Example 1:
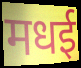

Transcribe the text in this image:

मधई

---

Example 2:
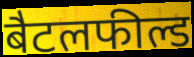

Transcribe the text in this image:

बैटलफील्ड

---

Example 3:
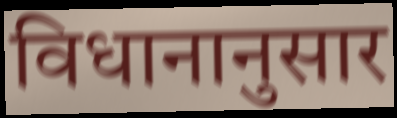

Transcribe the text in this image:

विधानानुसार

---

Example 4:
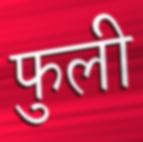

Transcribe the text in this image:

फुली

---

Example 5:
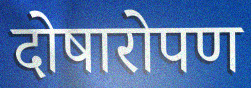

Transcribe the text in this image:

दोषारोपण